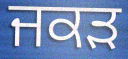
ਜਕਡ਼